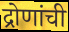
द्रोणांची